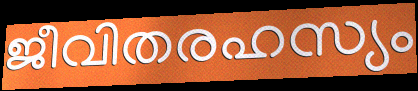
ജീവിതരഹസ്യം